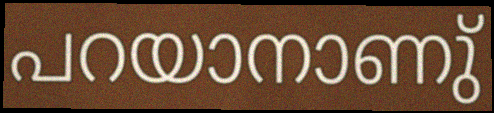
പറയാനാണു്